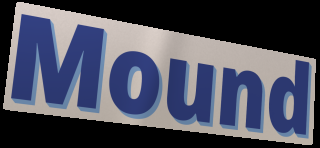
Mound